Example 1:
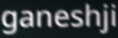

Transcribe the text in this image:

ganeshji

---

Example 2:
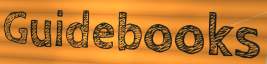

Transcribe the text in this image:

Guidebooks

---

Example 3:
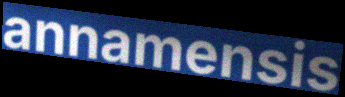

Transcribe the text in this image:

annamensis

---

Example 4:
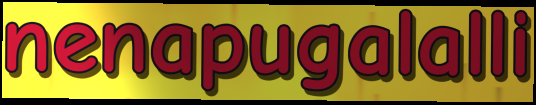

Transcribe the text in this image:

nenapugalalli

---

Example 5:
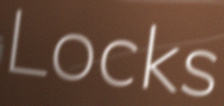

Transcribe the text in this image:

Locks